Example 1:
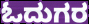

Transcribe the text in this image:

ಓದುಗರ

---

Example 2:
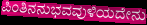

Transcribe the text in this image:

ಪಿಂತಿನನುಭವವುಳಿಯದೇನು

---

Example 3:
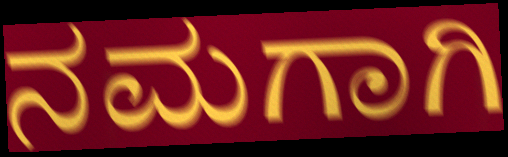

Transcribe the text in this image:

ನಮಗಾಗಿ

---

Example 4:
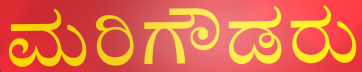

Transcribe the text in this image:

ಮರಿಗೌಡರು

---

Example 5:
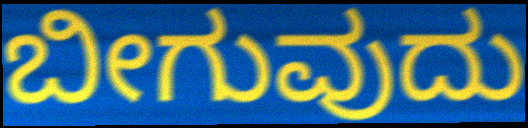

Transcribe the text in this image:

ಬೀಗುವುದು